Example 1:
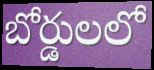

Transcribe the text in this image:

బోర్డులలో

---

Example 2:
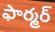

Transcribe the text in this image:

ఫార్మర్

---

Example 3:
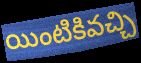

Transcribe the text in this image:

యింటికివచ్చి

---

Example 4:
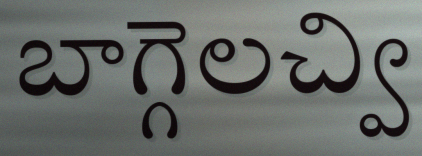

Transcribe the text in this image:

బాగ్గెలచ్వి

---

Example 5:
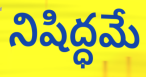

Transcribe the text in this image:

నిషిద్ధమే